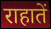
राहातें